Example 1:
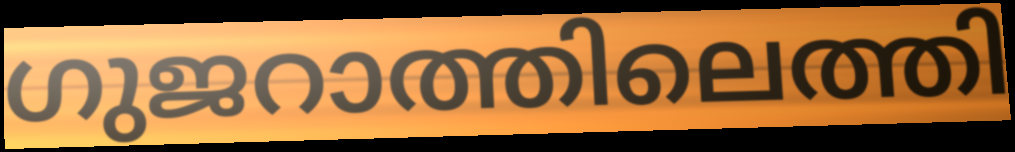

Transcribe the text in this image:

ഗുജറാത്തിലെത്തി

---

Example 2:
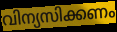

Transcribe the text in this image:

വിന്യസിക്കണം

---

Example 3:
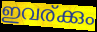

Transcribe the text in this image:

ഇവര്ക്കും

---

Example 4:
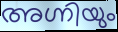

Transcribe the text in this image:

അഗ്നിയും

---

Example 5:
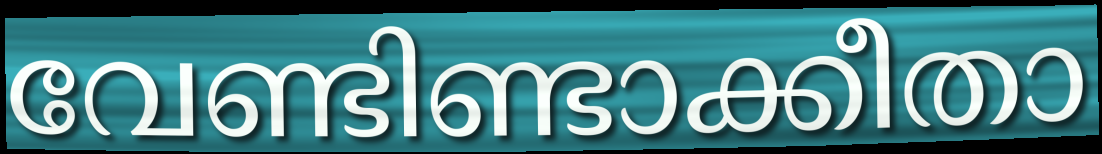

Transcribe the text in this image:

വേണ്ടിണ്ടാക്കീതാ